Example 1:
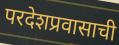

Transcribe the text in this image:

परदेशप्रवासाची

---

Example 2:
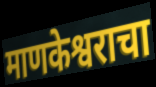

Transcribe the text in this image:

माणकेश्वराचा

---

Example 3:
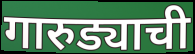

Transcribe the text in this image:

गारुड्याची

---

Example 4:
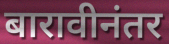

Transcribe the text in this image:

बारावीनंतर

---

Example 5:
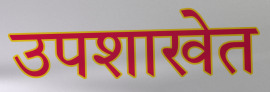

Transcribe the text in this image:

उपशाखेत